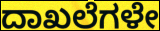
ದಾಖಲೆಗಳೇ